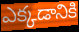
ఎక్కడానికి